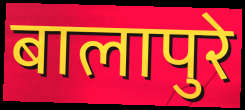
बालापुरे